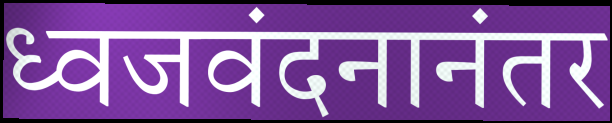
ध्वजवंदनानंतर